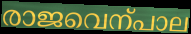
രാജവെന്പാല